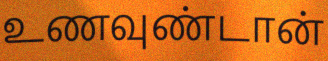
உணவுண்டான்